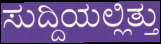
ಸುದ್ದಿಯಲ್ಲಿತ್ತು